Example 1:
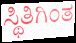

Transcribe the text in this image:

ಸ್ಥಿತಿಗಿಂತ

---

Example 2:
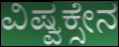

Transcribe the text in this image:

ವಿಷ್ವಕ್ಸೇನ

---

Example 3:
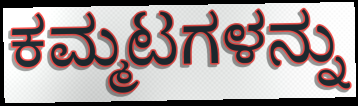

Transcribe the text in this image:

ಕಮ್ಮಟಗಳನ್ನು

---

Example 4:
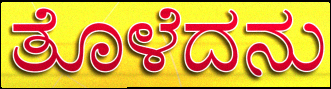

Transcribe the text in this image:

ತೊಳೆದನು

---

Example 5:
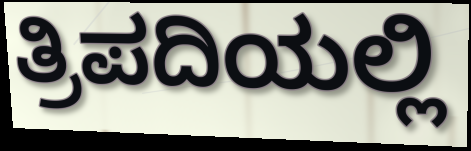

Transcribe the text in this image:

ತ್ರಿಪದಿಯಲ್ಲಿ